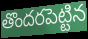
తొందరపెట్టిన